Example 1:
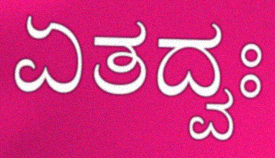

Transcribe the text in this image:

ಏತದ್ವಃ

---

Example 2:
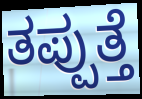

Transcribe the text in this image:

ತಪ್ಪುತ್ತೆ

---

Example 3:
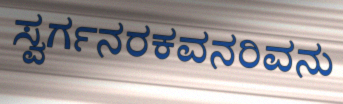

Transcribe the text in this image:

ಸ್ವರ್ಗನರಕವನರಿವನು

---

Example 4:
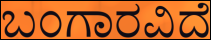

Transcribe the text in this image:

ಬಂಗಾರವಿದೆ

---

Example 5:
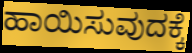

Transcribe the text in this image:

ಹಾಯಿಸುವುದಕ್ಕೆ